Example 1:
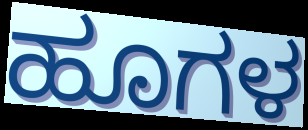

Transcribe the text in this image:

ಹೂಗಳ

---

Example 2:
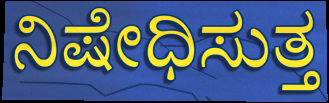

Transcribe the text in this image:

ನಿಷೇಧಿಸುತ್ತ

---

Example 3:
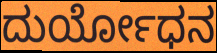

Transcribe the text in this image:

ದುರ್ಯೋಧನ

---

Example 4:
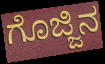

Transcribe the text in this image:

ಗೊಜ್ಜಿನ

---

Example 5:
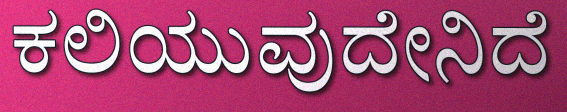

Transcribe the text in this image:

ಕಲಿಯುವುದೇನಿದೆ